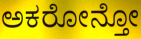
ಅಕರೋನ್ತೋ